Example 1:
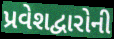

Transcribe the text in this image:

પ્રવેશદ્વારોની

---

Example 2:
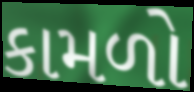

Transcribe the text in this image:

કામળો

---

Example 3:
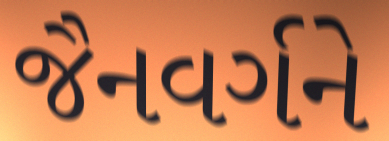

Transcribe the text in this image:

જૈનવર્ગને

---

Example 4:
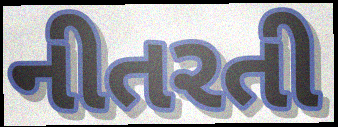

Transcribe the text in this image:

નીતરતી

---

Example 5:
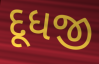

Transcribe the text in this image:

દૂધજી